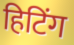
हिटिंग